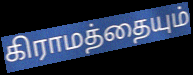
கிராமத்தையும்